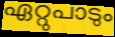
ഏറ്റുപാടും